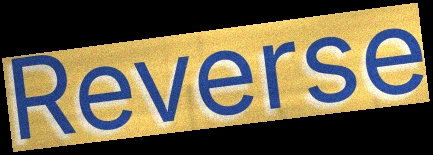
Reverse